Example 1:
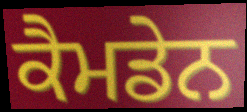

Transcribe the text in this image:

ਕੈਮਡੇਨ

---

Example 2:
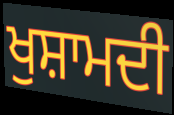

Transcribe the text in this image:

ਖੁਸ਼ਾਮਦੀ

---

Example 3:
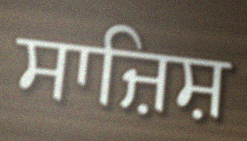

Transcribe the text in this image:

ਸਾਜ਼ਿਸ਼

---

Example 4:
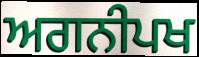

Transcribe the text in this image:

ਅਗਨੀਪਖ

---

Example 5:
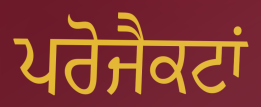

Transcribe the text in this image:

ਪਰੋਜੈਕਟਾਂ